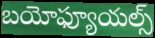
బయోఫ్యూయల్స్